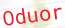
Oduor